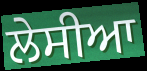
ਲੇਸੀਆ